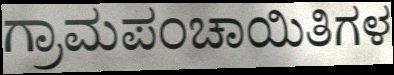
ಗ್ರಾಮಪಂಚಾಯಿತಿಗಳ